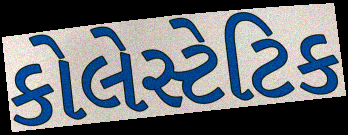
કોલેસ્ટેટિક